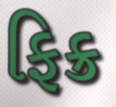
ફિક્ર